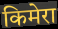
किमेरा